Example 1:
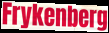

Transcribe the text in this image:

Frykenberg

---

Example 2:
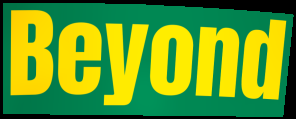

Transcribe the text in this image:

Beyond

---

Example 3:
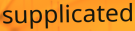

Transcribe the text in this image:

supplicated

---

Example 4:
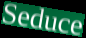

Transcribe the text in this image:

Seduce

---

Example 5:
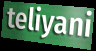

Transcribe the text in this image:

teliyani